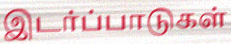
இடர்ப்பாடுகள்